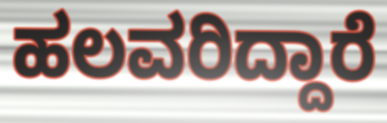
ಹಲವರಿದ್ದಾರೆ